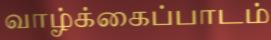
வாழ்க்கைப்பாடம்